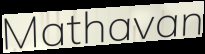
Mathavan